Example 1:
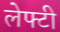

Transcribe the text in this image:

लेफ्टी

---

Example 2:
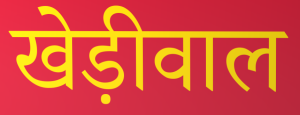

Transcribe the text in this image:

खेड़ीवाल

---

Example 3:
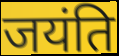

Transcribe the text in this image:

जयंति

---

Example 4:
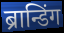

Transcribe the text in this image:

ब्रान्डिंग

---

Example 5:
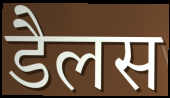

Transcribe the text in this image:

डैलस